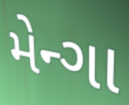
મેન્ગા